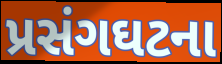
પ્રસંગઘટના